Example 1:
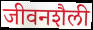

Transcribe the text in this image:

जीवनशैली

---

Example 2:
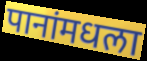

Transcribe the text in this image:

पानांमधला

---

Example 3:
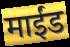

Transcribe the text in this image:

माईंड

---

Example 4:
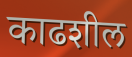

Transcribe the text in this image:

काढशील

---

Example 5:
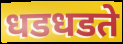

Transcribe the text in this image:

धडधडते